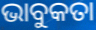
ଭାବୁକତା